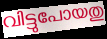
വിട്ടുപോയതു